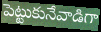
పెట్టుకునేవాడిగా